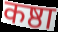
कष्ठा